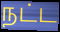
நட்ட